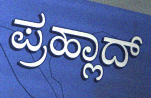
ಪ್ರಹ್ಲಾದ್